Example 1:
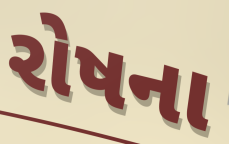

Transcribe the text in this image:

રોષના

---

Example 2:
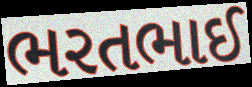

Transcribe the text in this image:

ભરતભાઈ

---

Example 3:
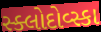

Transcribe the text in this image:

સ્ક્લોદોવ્સ્કા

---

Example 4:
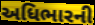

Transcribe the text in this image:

અધિભારની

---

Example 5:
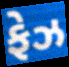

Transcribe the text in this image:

ફેઝ